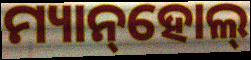
ମ୍ୟାନ୍‌ହୋଲ୍